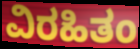
ವಿರಹಿತಂ